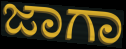
ಜಾಗಾ